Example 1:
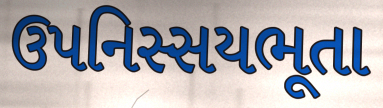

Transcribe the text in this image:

ઉપનિસ્સયભૂતા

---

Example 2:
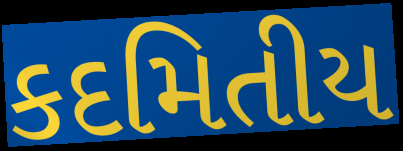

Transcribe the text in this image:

કદમિતીય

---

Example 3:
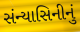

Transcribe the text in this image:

સંન્યાસિનીનું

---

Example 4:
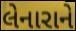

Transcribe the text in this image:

લેનારાને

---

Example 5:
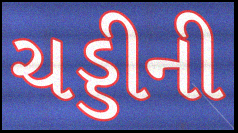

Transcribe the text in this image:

ચડ્ડીની